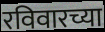
रविवारच्या